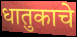
धातुकाचे